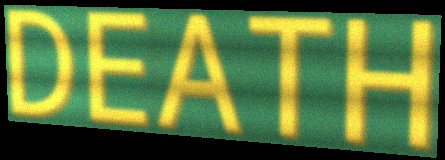
DEATH